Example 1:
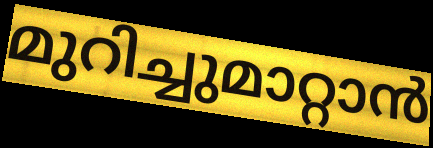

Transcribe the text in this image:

മുറിച്ചുമാറ്റാൻ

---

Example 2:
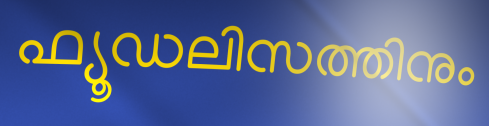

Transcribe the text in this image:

ഫ്യൂഡലിസത്തിനും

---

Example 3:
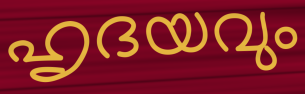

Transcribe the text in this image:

ഹൃദയവും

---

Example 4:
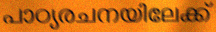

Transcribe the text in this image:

പാഠ്യരചനയിലേക്ക്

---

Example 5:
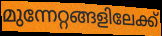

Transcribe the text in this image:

മുന്നേറ്റങ്ങളിലേക്ക്